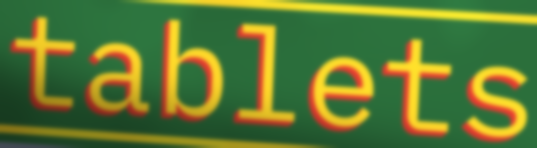
tablets